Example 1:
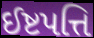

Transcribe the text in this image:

ઈષ્ટપત્તિ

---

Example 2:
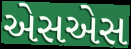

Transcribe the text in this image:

એસએસ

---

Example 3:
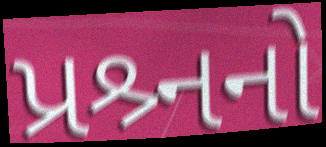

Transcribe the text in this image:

પ્રશ્ર્નનો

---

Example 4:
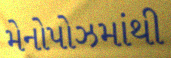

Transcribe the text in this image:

મેનોપોઝમાંથી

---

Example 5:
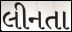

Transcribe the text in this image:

લીનતા